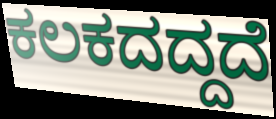
ಕಲಕದದ್ದದೆ